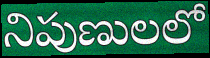
నిపుణులలో